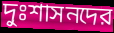
দুঃশাসনদের